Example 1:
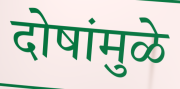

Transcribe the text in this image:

दोषांमुळे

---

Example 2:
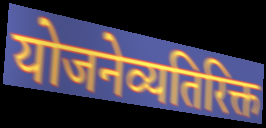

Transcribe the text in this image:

योजनेव्यतिरिक्त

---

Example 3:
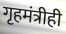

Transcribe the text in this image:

गृहमंत्रीही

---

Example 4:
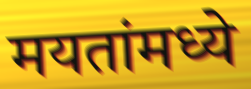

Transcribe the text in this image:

मयतांमध्ये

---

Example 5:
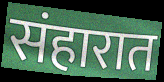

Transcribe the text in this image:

संहारात